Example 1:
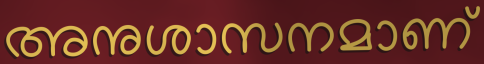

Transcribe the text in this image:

അനുശാസനമാണ്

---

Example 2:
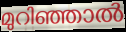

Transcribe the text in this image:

മുറിഞ്ഞാൽ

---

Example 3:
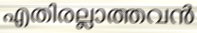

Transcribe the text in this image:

എതിരല്ലാത്തവൻ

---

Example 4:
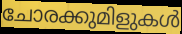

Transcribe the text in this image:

ചോരക്കുമിളുകൾ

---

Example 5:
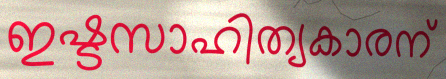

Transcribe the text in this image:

ഇഷ്ടസാഹിത്യകാരന്